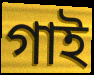
গাই